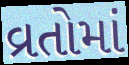
વ્રતોમાં